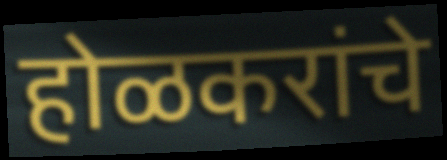
होळकरांचे